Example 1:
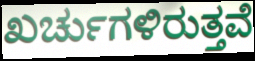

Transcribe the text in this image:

ಖರ್ಚುಗಳಿರುತ್ತವೆ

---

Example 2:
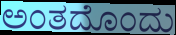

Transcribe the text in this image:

ಅಂತದೊಂದು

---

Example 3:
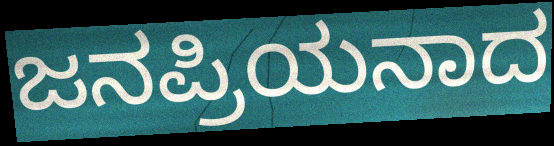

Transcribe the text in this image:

ಜನಪ್ರಿಯನಾದ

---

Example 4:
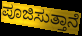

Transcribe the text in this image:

ಪೂಜಿಸುತ್ತಾನೆ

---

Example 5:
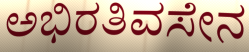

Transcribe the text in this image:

ಅಭಿರತಿವಸೇನ